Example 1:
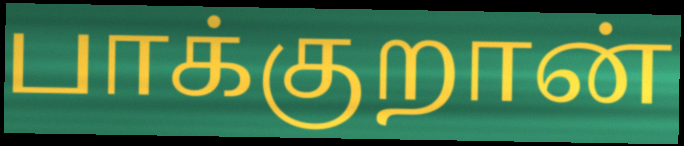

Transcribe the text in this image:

பாக்குறான்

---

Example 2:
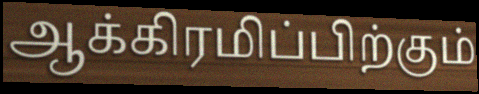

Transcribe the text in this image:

ஆக்கிரமிப்பிற்கும்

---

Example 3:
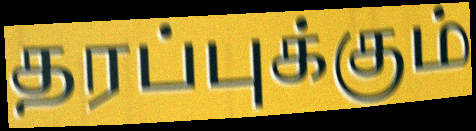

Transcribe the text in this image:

தரப்புக்கும்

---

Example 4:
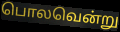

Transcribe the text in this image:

பொலவென்று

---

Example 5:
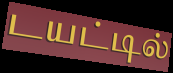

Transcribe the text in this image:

டயட்டில்